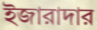
ইজারাদার